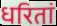
धरितां